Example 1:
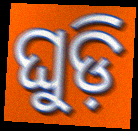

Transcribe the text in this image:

ଘୁଡ଼ି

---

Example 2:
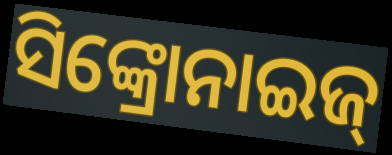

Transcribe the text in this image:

ସିଙ୍କ୍ରୋନାଇଜ୍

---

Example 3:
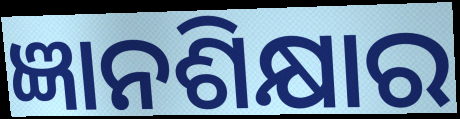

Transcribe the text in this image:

ଜ୍ଞାନଶିକ୍ଷାର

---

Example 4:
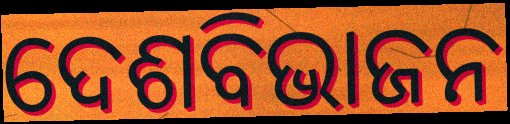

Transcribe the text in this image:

ଦେଶବିଭାଜନ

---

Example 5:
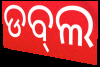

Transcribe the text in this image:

ଡବ୍‌ଲ